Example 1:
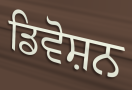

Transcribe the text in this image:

ਡਿਵੋਸ਼ਨ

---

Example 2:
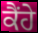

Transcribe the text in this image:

ਕੈਂਹੇ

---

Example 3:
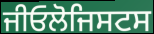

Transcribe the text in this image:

ਜੀਓਲੋਜਿਸਟਸ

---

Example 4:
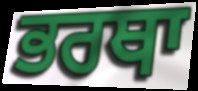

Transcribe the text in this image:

ਭਰਥਾ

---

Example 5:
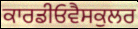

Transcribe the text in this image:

ਕਾਰਡੀਓਵੈਸਕੁਲਰ